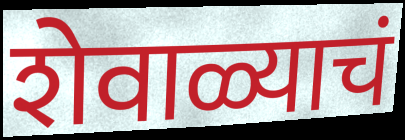
शेवाळ्याचं